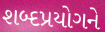
શબ્દપ્રયોગને